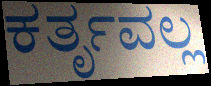
ಕರ್ತೃವಲ್ಲ